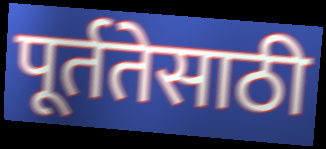
पूर्ततेसाठी